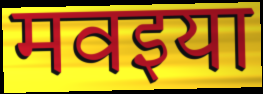
मवइया